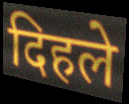
दिहले